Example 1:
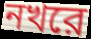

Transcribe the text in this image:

নখরে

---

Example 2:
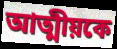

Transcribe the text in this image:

আত্মীয়কে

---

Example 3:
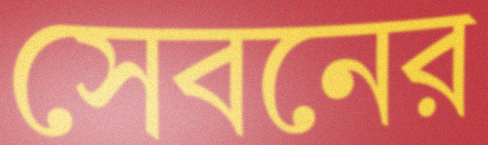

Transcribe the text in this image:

সেবনের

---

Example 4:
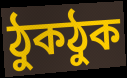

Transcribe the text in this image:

ঠুকঠুক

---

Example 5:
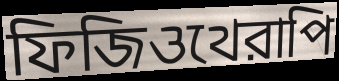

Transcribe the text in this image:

ফিজিওথেরাপি